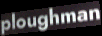
ploughman